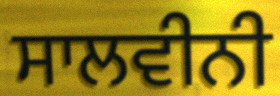
ਸਾਲਵੀਨੀ